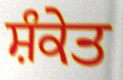
ਸ਼ੰਕੇਤ